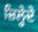
ਜ਼ਿਲ੍ਹੇਦੇ